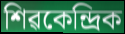
শিৱকেন্দ্ৰিক